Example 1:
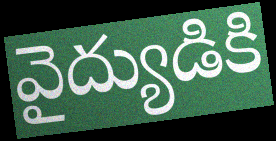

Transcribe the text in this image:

వైద్యుడికి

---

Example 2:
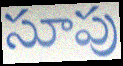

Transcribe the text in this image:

సూపు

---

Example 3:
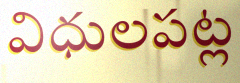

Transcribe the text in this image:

విధులపట్ల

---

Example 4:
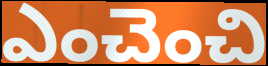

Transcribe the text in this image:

ఎంచెంచి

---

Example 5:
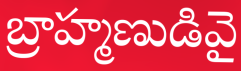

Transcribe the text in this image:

బ్రాహ్మణుడివై